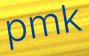
pmk